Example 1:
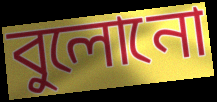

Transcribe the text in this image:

বুলোনো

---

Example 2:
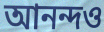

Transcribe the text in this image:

আনন্দও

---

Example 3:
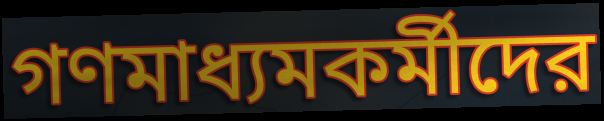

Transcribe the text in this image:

গণমাধ্যমকর্মীদের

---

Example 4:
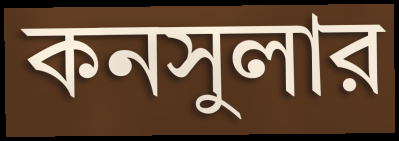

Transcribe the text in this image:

কনসুলার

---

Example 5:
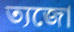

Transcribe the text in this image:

ত্যজো